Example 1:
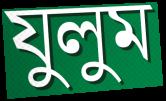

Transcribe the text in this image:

যুলুম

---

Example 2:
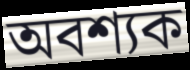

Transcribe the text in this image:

অবশ্যক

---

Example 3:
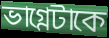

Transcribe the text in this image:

ভাগ্নেটাকে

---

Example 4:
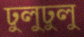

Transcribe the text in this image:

ঢুলুঢুলু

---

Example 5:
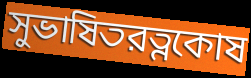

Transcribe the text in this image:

সুভাষিতরত্নকোষ